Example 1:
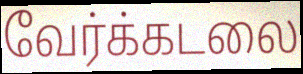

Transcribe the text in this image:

வேர்க்கடலை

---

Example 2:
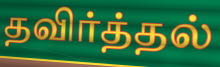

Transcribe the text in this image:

தவிர்த்தல்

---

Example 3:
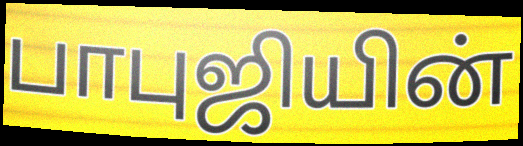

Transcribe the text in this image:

பாபுஜியின்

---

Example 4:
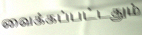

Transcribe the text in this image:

வைக்கப்பட்டதும்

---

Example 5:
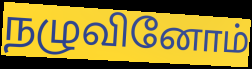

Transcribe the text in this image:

நழுவினோம்